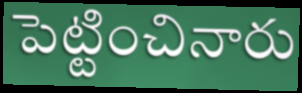
పెట్టించినారు